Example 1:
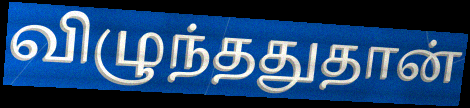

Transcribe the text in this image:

விழுந்ததுதான்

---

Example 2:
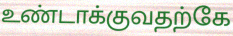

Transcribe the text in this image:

உண்டாக்குவதற்கே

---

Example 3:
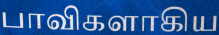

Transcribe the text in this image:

பாவிகளாகிய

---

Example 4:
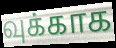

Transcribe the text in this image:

வுக்காக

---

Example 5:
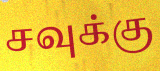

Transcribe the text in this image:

சவுக்கு